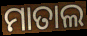
ମାତାଲ